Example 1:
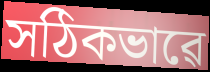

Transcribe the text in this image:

সঠিকভাৱে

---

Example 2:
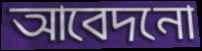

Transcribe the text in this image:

আবেদনো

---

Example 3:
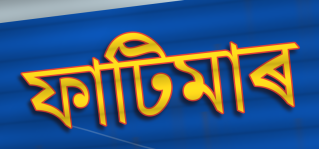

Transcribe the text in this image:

ফাটিমাৰ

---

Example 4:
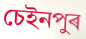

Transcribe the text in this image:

চেইনপুৰ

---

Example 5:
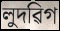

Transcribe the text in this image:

লুদৱিগ